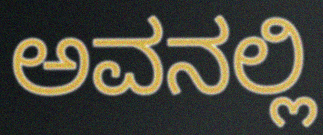
ಅವನಲ್ಲಿ